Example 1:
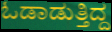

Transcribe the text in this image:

ಓಡಾಡುತ್ತಿದ್ದ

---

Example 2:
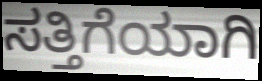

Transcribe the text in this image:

ಸತ್ತಿಗೆಯಾಗಿ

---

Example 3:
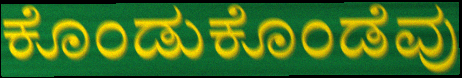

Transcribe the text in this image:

ಕೊಂಡುಕೊಂಡೆವು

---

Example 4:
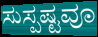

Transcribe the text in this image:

ಸುಸ್ಪಷ್ಟವೂ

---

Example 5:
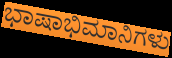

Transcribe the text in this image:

ಭಾಷಾಭಿಮಾನಿಗಳು